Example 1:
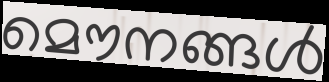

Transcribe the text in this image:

മൌനങ്ങൾ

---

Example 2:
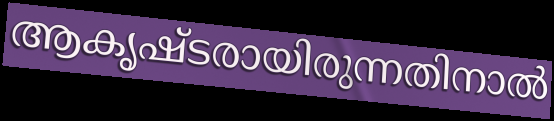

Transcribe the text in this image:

ആകൃഷ്ടരായിരുന്നതിനാൽ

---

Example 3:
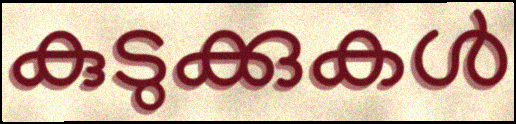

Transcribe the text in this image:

കുടുക്കുകൾ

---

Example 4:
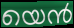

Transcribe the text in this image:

യെൻ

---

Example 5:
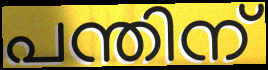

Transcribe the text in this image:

പന്തിന്